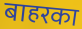
बाहरका